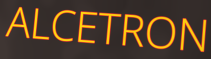
ALCETRON